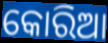
କୋରିଆ